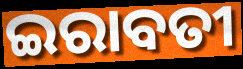
ଇରାବତୀ